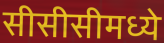
सीसीसीमध्ये